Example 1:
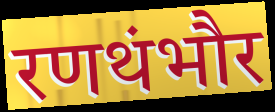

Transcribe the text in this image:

रणथंभौर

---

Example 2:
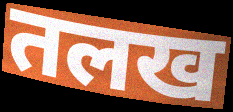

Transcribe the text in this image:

तलख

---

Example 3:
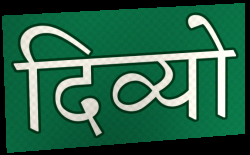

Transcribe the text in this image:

दिव्यो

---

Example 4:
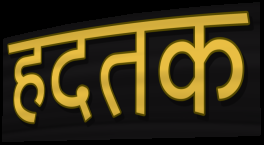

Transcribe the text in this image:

हदतक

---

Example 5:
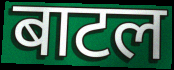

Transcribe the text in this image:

बाटल